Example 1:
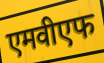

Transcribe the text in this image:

एमवीएफ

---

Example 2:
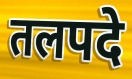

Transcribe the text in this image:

तलपदे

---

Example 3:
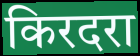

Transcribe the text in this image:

किरदरा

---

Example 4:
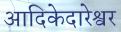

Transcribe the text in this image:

आदिकेदारेश्वर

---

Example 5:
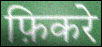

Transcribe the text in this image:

फ़िकरे